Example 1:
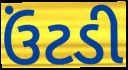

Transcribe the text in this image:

ઉંટડી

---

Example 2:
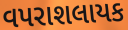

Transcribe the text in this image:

વપરાશલાયક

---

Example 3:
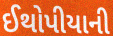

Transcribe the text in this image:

ઈથોપીયાની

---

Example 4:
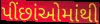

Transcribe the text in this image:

પીંછાંઓમાંથી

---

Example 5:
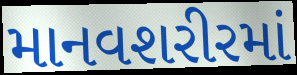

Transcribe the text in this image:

માનવશરીરમાં